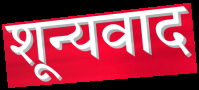
शून्यवाद